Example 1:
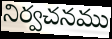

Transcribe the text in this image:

నిర్వచనము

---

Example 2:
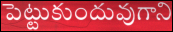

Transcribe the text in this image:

పెట్టుకుందువుగాని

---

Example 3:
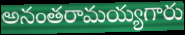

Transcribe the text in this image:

అనంతరామయ్యగారు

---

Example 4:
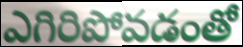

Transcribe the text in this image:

ఎగిరిపోవడంతో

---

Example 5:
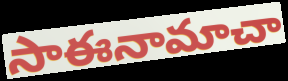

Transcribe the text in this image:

సాఈనామాచా